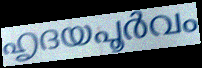
ഹൃദയപൂർവം